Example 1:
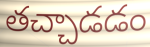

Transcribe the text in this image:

తచ్చాడడం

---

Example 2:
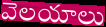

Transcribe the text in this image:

వెలయాలు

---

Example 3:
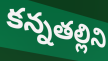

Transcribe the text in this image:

కన్నతల్లిని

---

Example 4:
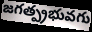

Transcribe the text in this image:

జగత్ప్రభువగు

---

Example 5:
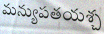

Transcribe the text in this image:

మన్యుపతయశ్చ